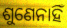
ଶୁଣେନାହିଁ